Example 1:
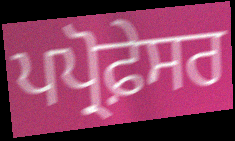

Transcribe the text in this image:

ਪਪ੍ਰੋਫ਼ੇਸਰ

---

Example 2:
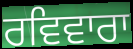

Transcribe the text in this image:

ਰਵਿਵਾਰਾ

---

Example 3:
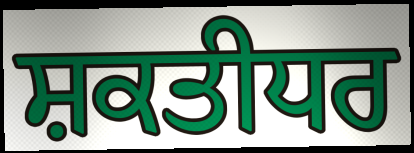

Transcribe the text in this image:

ਸ਼ਕਤੀਧਰ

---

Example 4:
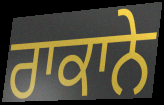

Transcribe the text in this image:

ਰਾਕਾਨੇ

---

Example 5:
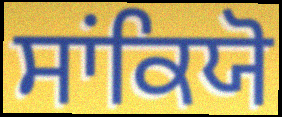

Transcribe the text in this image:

ਸਾਂਕਿਯੋ